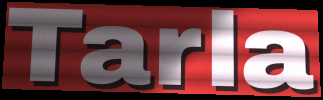
Tarla